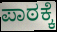
ಪಾಠಕ್ಕೆ